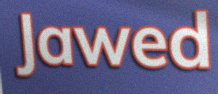
Jawed